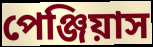
পেঞ্জিয়াস